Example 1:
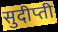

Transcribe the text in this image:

सुदीप्ती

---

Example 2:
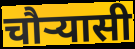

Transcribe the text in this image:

चौर्‍यासी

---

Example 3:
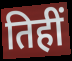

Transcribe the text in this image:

तिहीं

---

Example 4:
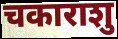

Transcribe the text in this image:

चकाराशु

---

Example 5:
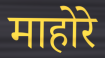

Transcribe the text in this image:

माहोरे